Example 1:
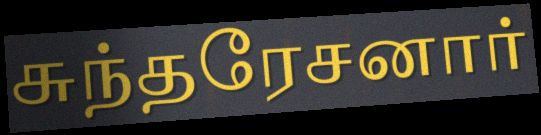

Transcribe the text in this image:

சுந்தரேசனார்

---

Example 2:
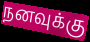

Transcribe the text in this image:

நனவுக்கு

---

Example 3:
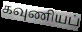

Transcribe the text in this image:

கவுணியப்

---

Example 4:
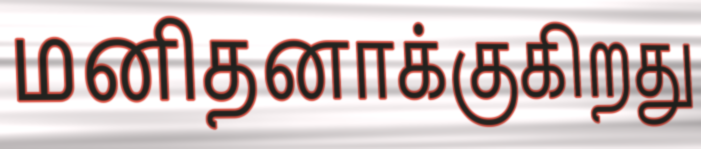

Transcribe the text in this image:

மனிதனாக்குகிறது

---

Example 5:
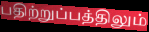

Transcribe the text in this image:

பதிற்றுப்பத்திலும்